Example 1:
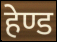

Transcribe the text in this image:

हेण्ड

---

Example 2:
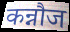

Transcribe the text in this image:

कन्नौज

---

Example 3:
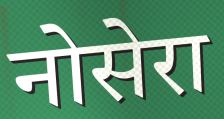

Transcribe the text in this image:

नोसेरा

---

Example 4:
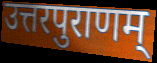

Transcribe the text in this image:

उत्तरपुराणम्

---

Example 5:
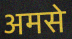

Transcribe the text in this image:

अमसे